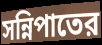
সন্নিপাতের